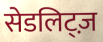
सेडलिट्ज़